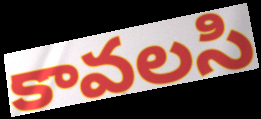
కావలసి